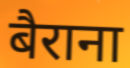
बैराना